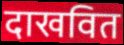
दाखवित